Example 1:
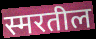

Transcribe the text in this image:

स्मरतील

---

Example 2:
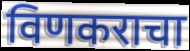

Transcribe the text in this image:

विणकराचा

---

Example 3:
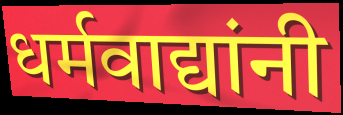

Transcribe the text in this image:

धर्मवाद्यांनी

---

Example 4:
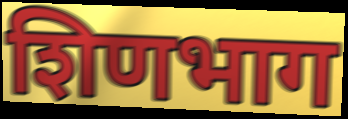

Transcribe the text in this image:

शिणभाग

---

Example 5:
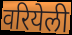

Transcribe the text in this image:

वरियेली